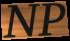
NP